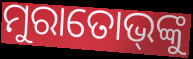
ମୁରାତୋଭ୍‌ଙ୍କୁ